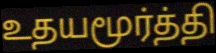
உதயமூர்த்தி